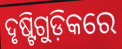
ଦୃଷ୍ଟିଗୁଡ଼ିକରେ